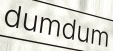
dumdum